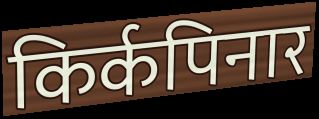
किर्कपिनार